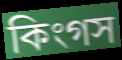
কিংগস